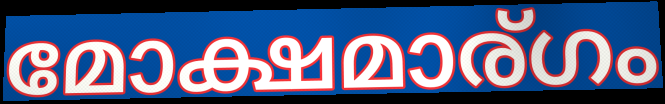
മോക്ഷമാര്ഗം